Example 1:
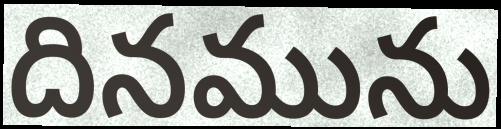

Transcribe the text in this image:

దినమును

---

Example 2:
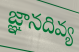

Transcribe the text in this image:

జ్ఞానదివ్య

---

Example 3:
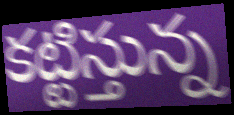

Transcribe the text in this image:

కట్టిస్తున్న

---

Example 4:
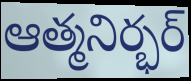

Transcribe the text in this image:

ఆత్మనిర్భర్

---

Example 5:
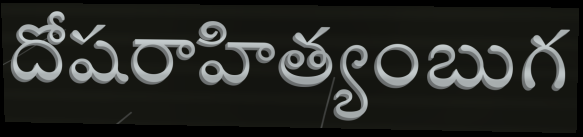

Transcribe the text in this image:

దోషరాహిత్యంబుగ